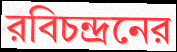
রবিচন্দ্রনের